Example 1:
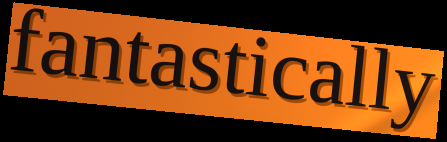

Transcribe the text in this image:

fantastically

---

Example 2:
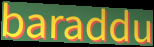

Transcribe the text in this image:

baraddu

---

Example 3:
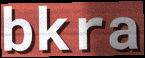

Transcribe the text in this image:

bkra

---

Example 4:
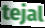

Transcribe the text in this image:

tejal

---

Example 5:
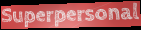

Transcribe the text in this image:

Superpersonal